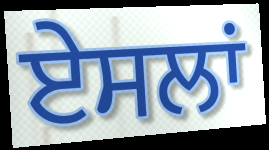
ਏਸਲਾਂ